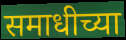
समाधीच्या